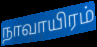
நாவாயிரம்